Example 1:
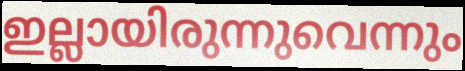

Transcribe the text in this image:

ഇല്ലായിരുന്നുവെന്നും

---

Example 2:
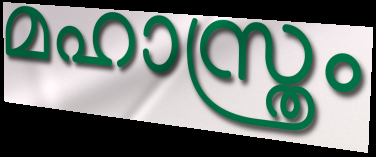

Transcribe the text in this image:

മഹാസ്ത്രം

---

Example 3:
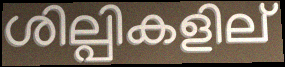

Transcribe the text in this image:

ശില്പികളില്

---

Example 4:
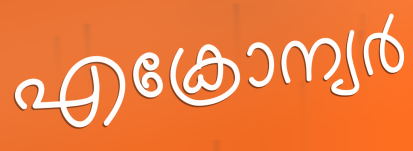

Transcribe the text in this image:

എക്രോന്യർ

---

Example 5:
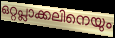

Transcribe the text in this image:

ഒറ്റപ്ലാക്കലിനെയും